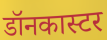
डॉनकास्टर